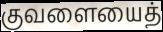
குவளையைத்